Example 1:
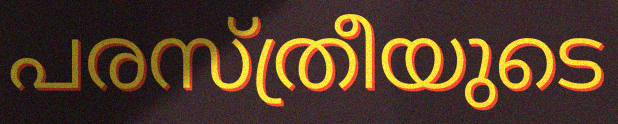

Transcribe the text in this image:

പരസ്ത്രീയുടെ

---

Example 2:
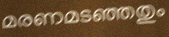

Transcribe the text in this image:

മരണമടഞ്ഞതും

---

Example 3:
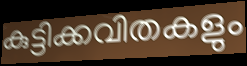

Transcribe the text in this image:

കുട്ടിക്കവിതകളും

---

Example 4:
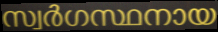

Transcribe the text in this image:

സ്വർഗസ്ഥനായ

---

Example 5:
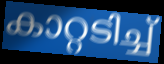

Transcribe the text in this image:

കാറ്റടിച്ച്